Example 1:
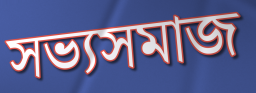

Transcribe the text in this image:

সভ্যসমাজ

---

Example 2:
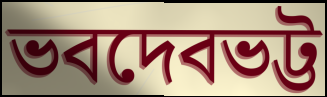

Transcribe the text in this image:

ভবদেবভট্ট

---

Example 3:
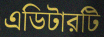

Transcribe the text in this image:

এডিটারটি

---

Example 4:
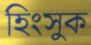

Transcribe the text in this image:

হিংসুক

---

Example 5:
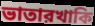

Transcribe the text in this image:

ভাতারখাকি